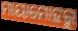
ମାୟାମୋହରୁ